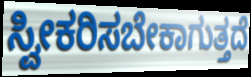
ಸ್ವೀಕರಿಸಬೇಕಾಗುತ್ತದೆ